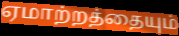
ஏமாற்றத்தையும்